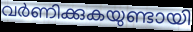
വർണിക്കുകയുണ്ടായി